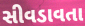
સીવડાવતા